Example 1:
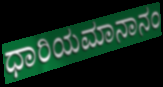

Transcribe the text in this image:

ಧಾರಿಯಮಾನಾನಂ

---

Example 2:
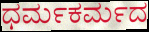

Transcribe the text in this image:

ಧರ್ಮಕರ್ಮದ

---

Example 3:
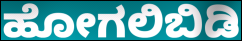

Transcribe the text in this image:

ಹೋಗಲಿಬಿಡಿ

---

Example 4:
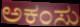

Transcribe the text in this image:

ಅಕಂಸು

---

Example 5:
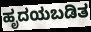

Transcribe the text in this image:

ಹೃದಯಬಡಿತ